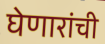
घेणारांची